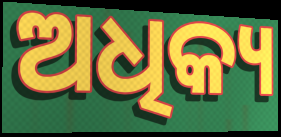
ଅଧିକ୍ୟ